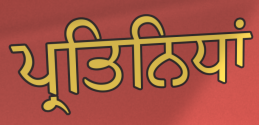
ਪ੍ਰਤਿਨਿਧਾਂ